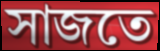
সাজতে